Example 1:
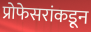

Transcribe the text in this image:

प्रोफेसरांकडून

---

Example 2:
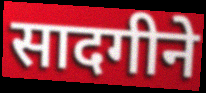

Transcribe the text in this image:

सादगीने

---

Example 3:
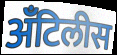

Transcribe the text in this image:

अँटिलीस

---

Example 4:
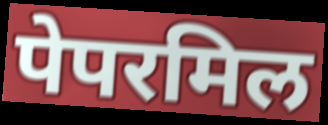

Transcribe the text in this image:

पेपरमिल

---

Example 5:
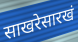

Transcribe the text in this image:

साखरेसारखं